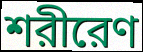
শরীরেণ